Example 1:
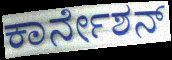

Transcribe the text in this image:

ಕಾರ್ನೇಶನ್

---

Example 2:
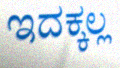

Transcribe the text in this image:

ಇದಕ್ಕಲ್ಲ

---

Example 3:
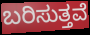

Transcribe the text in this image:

ಬರಿಸುತ್ತವೆ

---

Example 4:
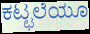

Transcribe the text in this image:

ಕಟ್ಟಲೆಯೂ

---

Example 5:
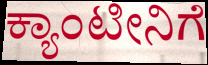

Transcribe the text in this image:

ಕ್ಯಾಂಟೀನಿಗೆ